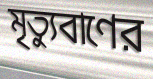
মৃত্যুবাণের